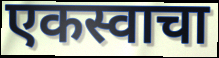
एकस्वाचा